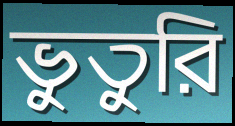
ভুতুরি